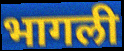
भागली